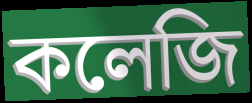
কলেজি